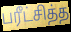
பரீட்சித்த